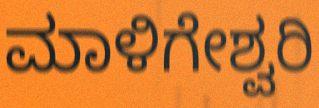
ಮಾಳಿಗೇಶ್ವರಿ